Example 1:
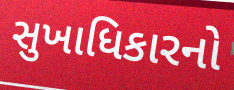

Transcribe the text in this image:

સુખાધિકારનો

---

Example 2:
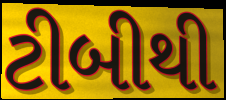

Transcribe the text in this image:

ટીબીથી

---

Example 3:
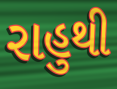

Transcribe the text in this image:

રાહુથી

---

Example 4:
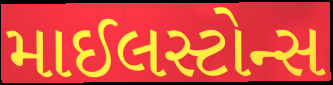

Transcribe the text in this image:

માઈલસ્ટોન્સ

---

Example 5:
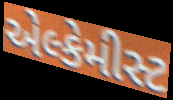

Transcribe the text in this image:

એલ્કેમીસ્ટ